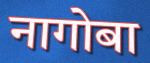
नागोबा